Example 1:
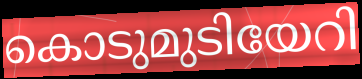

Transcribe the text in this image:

കൊടുമുടിയേറി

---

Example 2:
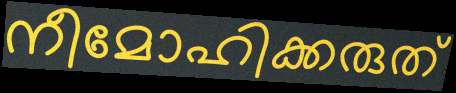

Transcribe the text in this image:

നീമോഹിക്കരുത്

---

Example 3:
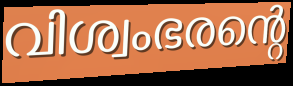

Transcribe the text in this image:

വിശ്വംഭരന്റെ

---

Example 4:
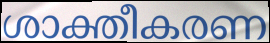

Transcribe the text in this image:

ശാക്തീകരണ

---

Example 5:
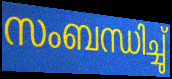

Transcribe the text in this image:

സംബന്ധിച്ചു്